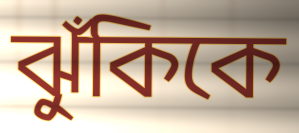
ঝুঁকিকে